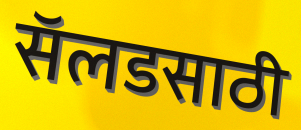
सॅलडसाठी